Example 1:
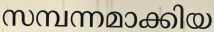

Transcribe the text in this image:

സമ്പന്നമാക്കിയ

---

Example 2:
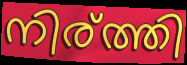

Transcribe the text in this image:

നിര്ത്തി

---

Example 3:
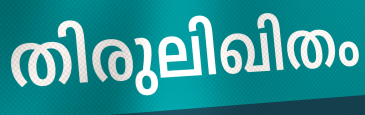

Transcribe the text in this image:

തിരുലിഖിതം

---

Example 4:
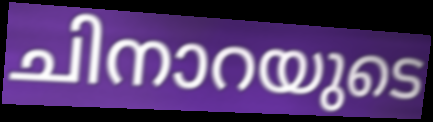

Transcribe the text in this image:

ചിനാറയുടെ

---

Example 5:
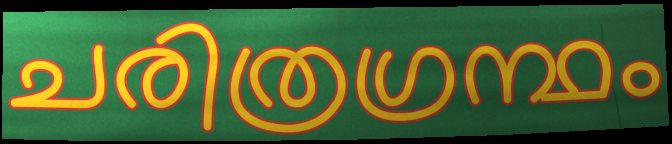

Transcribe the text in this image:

ചരിത്രഗ്രന്ഥം